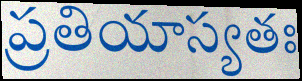
ప్రతియాస్యతః